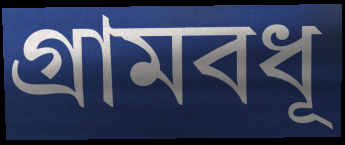
গ্রামবধূ